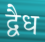
द्वैध